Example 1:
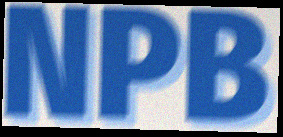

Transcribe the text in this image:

NPB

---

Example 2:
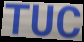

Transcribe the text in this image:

TUC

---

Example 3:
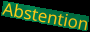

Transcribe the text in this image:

Abstention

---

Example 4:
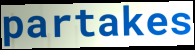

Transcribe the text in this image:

partakes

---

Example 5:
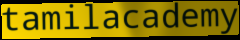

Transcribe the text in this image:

tamilacademy